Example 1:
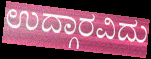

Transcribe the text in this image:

ಉದ್ಗಾರವಿದು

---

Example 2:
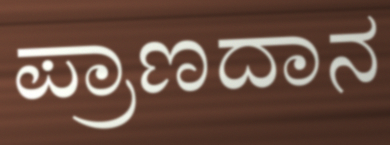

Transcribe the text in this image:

ಪ್ರಾಣದಾನ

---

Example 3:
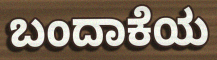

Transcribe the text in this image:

ಬಂದಾಕೆಯ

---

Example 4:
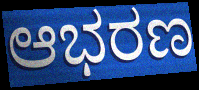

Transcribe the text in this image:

ಆಭರಣ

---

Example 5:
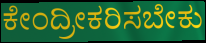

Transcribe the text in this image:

ಕೇಂದ್ರೀಕರಿಸಬೇಕು